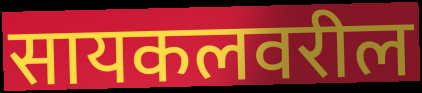
सायकलवरील